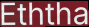
Eththa